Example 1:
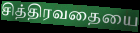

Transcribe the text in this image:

சித்திரவதையை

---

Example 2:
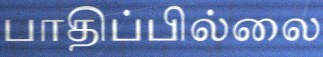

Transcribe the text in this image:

பாதிப்பில்லை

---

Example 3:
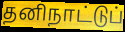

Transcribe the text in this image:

தனிநாட்டுப்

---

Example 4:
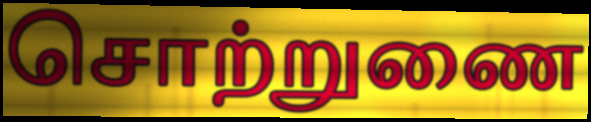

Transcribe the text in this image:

சொற்றுணை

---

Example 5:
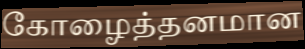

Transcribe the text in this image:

கோழைத்தனமான